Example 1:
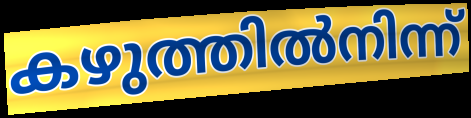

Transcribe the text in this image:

കഴുത്തിൽനിന്ന്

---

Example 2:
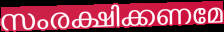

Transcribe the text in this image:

സംരക്ഷിക്കണമേ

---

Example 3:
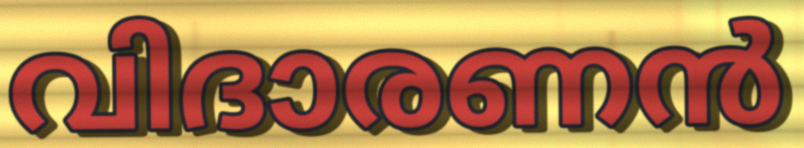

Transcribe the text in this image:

വിദാരണൻ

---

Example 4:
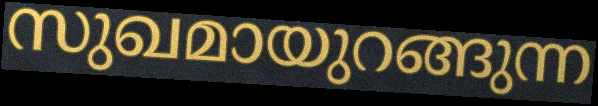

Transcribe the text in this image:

സുഖമായുറങ്ങുന്ന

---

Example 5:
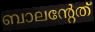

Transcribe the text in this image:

ബാലന്റേത്